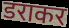
डराकर